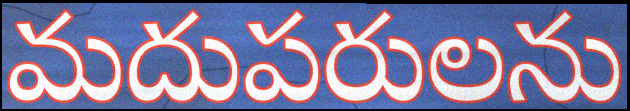
మదుపరులను